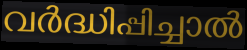
വർദ്ധിപ്പിച്ചാൽ